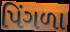
પિંગળા